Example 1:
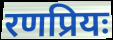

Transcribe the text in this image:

रणप्रियः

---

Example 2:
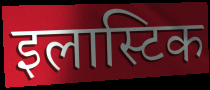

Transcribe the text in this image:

इलास्टिक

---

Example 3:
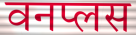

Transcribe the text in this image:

वनप्लस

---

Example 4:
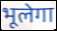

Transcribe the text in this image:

भूलेगा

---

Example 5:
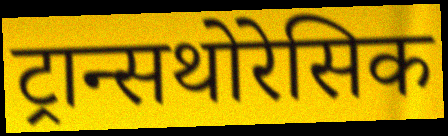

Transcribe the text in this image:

ट्रान्सथोरेसिक